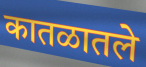
कातळातले